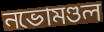
নভোমণ্ডল